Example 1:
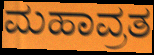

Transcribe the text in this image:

ಮಹಾವ್ರತ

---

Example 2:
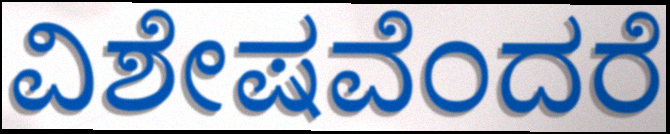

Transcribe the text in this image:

ವಿಶೇಷವೆಂದರೆ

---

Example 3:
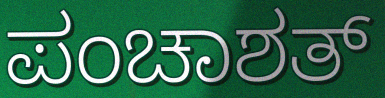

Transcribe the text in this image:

ಪಂಚಾಶತ್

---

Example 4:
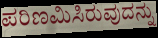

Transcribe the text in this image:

ಪರಿಣಮಿಸಿರುವುದನ್ನು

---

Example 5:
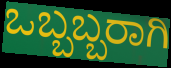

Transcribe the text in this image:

ಒಬ್ಬಬ್ಬರಾಗಿ